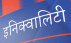
इनिक्वालिटी